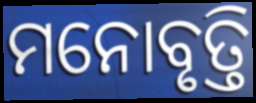
ମନୋବୃତ୍ତି